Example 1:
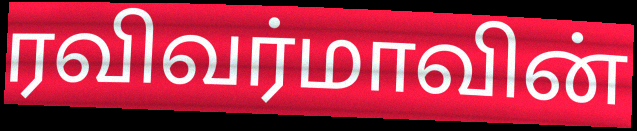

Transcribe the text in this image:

ரவிவர்மாவின்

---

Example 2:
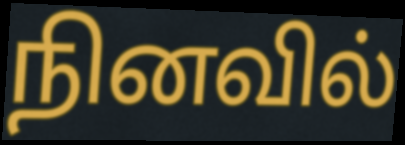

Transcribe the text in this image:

நினவில்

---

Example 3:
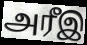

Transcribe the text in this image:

அரீஇ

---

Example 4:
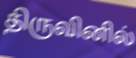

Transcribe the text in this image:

திருவினில்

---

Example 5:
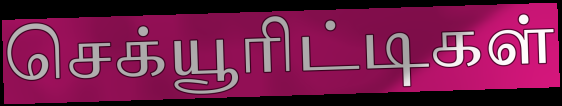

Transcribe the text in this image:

செக்யூரிட்டிகள்